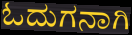
ಓದುಗನಾಗಿ